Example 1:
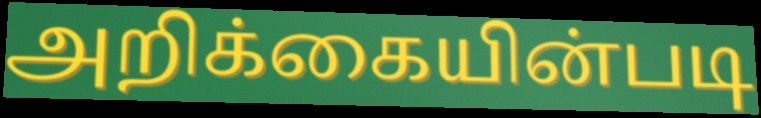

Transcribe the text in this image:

அறிக்கையின்படி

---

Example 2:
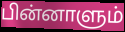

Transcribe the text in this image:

பின்னாளும்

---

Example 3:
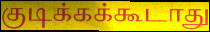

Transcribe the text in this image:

குடிக்கக்கூடாது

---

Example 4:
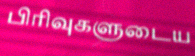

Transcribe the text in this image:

பிரிவுகளுடைய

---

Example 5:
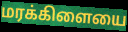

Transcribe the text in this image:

மரக்கிளையை